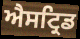
ਐਸਟ੍ਰਿਡ